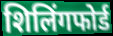
शिलिंगफोर्ड